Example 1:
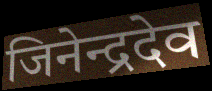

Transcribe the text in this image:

जिनेन्द्रदेव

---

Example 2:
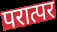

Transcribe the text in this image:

परात्पर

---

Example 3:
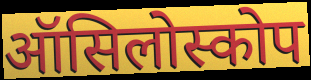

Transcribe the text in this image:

ऑसिलोस्कोप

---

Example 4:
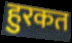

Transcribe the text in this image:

हुरकत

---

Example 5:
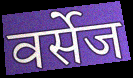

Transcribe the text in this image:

वर्सेज